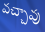
వచ్చావు